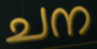
ചന